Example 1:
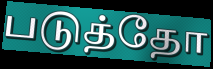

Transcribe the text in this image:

படுத்தோ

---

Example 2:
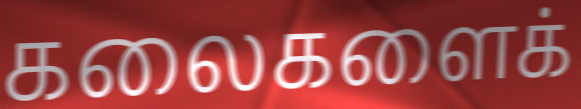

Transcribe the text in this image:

கலைகளைக்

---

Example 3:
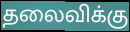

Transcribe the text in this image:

தலைவிக்கு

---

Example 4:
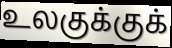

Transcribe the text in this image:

உலகுக்குக்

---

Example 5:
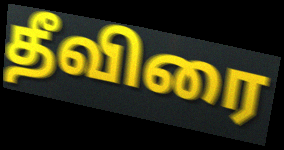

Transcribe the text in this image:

தீவிரை